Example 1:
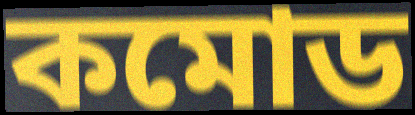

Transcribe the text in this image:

কমোড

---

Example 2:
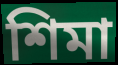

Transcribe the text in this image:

শিমা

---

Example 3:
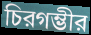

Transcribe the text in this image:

চিরগম্ভীর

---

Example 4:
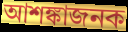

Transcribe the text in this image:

আশঙ্কাজনক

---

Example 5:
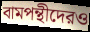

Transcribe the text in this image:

বামপন্থীদেরও